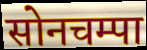
सोनचम्पा